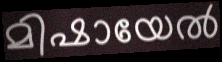
മിഷായേൽ